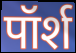
पॉर्श